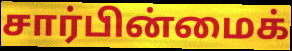
சார்பின்மைக்